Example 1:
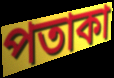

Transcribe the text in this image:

পতাকা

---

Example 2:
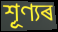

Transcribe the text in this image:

শূণ্যৰ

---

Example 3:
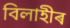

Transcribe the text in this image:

বিলাহীৰ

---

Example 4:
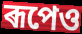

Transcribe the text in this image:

ৰূপেও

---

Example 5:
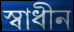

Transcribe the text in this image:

স্বাধীন